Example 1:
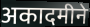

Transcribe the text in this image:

अकादमीने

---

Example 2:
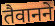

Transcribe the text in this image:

तैवानने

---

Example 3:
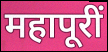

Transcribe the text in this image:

महापूरीं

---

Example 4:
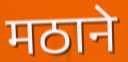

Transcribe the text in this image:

मठाने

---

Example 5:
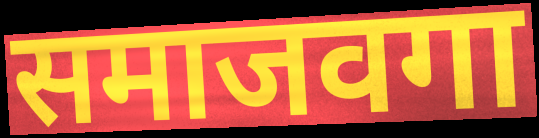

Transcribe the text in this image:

समाजवगा